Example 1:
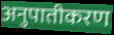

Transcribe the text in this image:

अनुपातीकरण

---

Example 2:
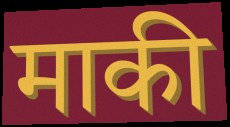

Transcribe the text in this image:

माकी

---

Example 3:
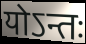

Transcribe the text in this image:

योऽन्तः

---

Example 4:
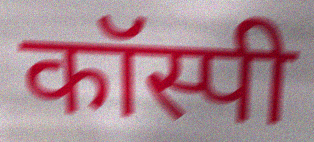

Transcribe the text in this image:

कॉस्पी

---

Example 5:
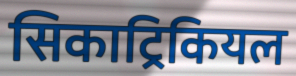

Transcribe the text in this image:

सिकाट्रिकियल